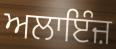
ਅਲਾਇੰਜ਼